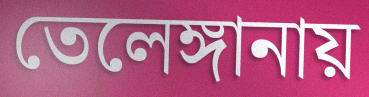
তেলেঙ্গানায়